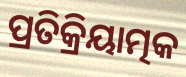
ପ୍ରତିକ୍ରିୟାତ୍ମକ